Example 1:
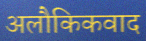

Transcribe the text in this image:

अलौकिकवाद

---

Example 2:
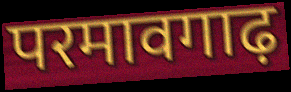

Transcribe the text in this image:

परमावगाढ़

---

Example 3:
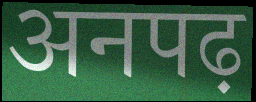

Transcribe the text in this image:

अनपढ़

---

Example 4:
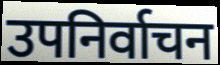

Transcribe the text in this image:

उपनिर्वाचन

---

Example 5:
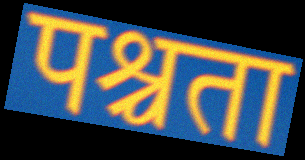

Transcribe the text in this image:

पश्चता